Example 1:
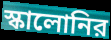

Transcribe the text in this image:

স্কালোনির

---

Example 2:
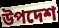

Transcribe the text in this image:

উপদেশ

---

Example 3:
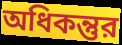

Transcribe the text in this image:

অধিকন্তুর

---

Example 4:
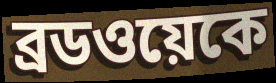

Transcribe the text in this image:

ব্রডওয়েকে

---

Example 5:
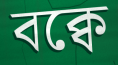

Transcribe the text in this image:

বক্বে